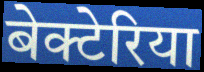
बेक्टेरिया